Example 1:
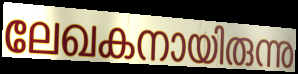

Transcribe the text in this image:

ലേഖകനായിരുന്നു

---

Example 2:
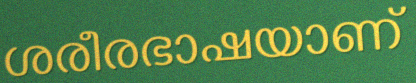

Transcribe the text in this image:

ശരീരഭാഷയാണ്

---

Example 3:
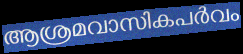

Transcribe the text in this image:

ആശ്രമവാസികപർവം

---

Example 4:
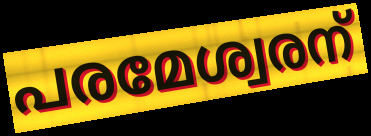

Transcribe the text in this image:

പരമേശ്വരന്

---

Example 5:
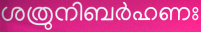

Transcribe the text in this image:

ശത്രുനിബർഹണഃ